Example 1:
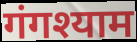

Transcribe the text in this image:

गंगश्याम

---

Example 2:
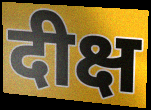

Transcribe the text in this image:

दीक्ष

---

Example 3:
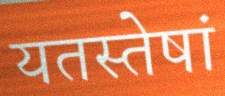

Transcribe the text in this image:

यतस्तेषां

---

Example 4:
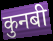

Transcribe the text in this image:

कुनबी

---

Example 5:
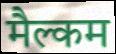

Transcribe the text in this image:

मैल्कम